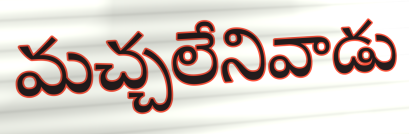
మచ్చలేనివాడు